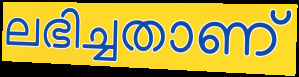
ലഭിച്ചതാണ്